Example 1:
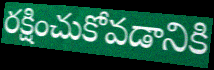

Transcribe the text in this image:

రక్షించుకోవడానికి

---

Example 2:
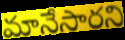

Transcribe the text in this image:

మానేసారని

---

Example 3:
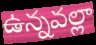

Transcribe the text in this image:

ఉన్నవల్లా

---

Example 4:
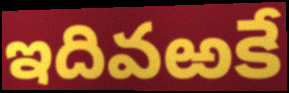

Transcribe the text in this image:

ఇదివఱకే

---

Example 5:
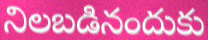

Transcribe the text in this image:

నిలబడినందుకు